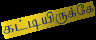
கட்டியிருக்கே